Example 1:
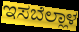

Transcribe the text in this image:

ಇಸಬೆಲ್ಲಾಳ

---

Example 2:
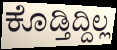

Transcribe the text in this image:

ಕೊಡ್ತಿದ್ದಿಲ್ಲ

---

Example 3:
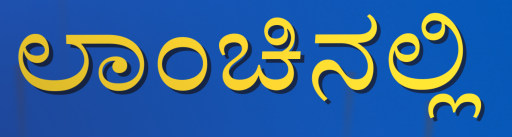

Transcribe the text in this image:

ಲಾಂಚಿನಲ್ಲಿ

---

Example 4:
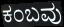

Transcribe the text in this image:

ಕಂಬವು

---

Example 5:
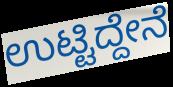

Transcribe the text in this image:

ಉಟ್ಟಿದ್ದೇನೆ